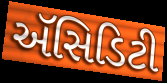
ઍસિડિટી